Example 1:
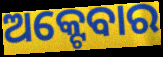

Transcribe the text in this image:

ଅକ୍ଟେବାର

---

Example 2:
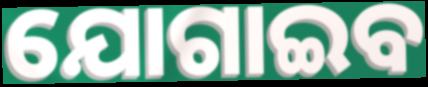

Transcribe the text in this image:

ଯୋଗାଇବ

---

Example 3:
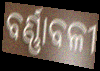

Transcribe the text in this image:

ବର୍ଣ୍ଣାବଳୀ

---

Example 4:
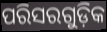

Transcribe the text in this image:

ପରିସରଗୁଡ଼ିକ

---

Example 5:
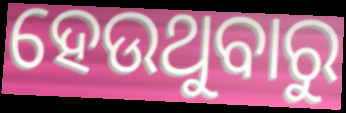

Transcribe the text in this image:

ହେଉଥୁବାରୁ